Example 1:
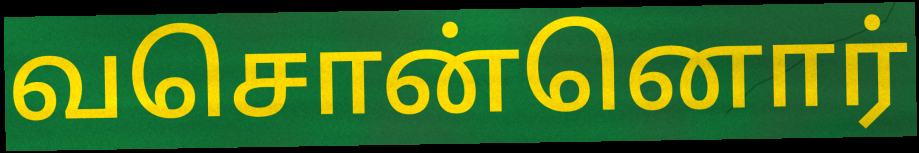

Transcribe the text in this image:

வசொன்னொர்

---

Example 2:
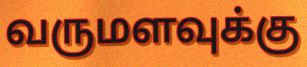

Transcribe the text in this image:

வருமளவுக்கு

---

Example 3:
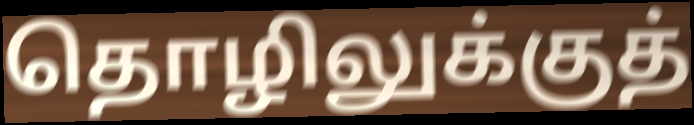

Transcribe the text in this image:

தொழிலுக்குத்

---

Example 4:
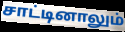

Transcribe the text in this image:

சாட்டினாலும்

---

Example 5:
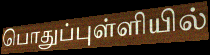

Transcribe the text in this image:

பொதுப்புள்ளியில்